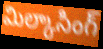
మిల్కాసింగ్